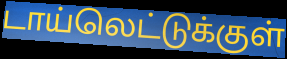
டாய்லெட்டுக்குள்